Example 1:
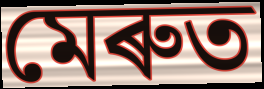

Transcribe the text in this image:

মেৰুত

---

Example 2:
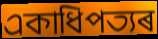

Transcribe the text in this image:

একাধিপত্যৰ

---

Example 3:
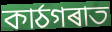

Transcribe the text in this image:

কাঠগৰাত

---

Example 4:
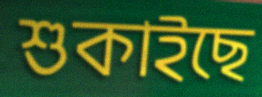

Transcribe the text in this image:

শুকাইছে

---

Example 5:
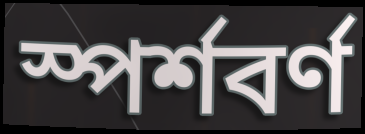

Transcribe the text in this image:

স্পৰ্শবৰ্ণ